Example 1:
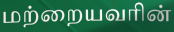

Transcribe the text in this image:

மற்றையவரின்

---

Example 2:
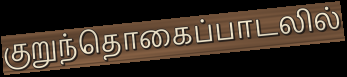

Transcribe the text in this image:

குறுந்தொகைப்பாடலில்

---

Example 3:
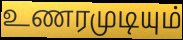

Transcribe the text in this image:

உணரமுடியும்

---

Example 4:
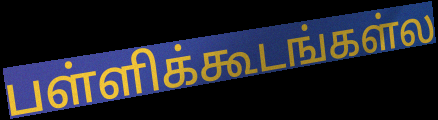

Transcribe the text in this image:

பள்ளிக்கூடங்கள்ல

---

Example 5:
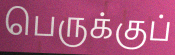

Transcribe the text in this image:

பெருக்குப்